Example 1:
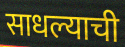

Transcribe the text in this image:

साधल्याची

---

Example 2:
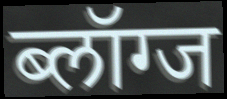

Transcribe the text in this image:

ब्लॉग्ज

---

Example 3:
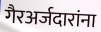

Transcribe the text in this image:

गैरअर्जदारांना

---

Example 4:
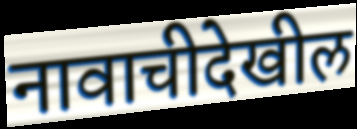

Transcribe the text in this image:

नावाचीदेखील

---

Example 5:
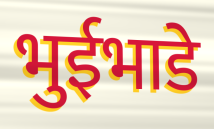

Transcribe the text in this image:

भुईभाडे